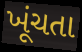
ખૂંચતા